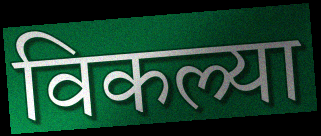
विकल्या